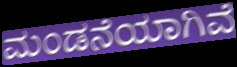
ಮಂಡನೆಯಾಗಿವೆ